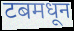
टबमधून